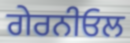
ਗੇਰਨੀਓਲ